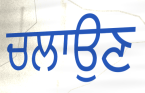
ਚਲਾਉਣ